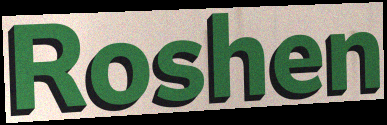
Roshen